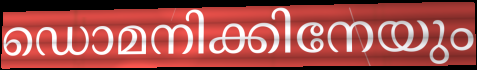
ഡൊമനിക്കിനേയും